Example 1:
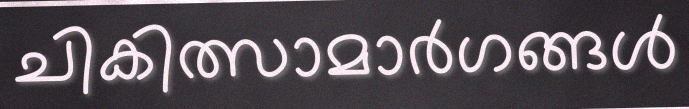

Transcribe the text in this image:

ചികിത്സാമാർഗങ്ങൾ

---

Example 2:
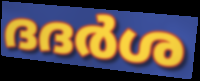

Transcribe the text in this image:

ദദർശ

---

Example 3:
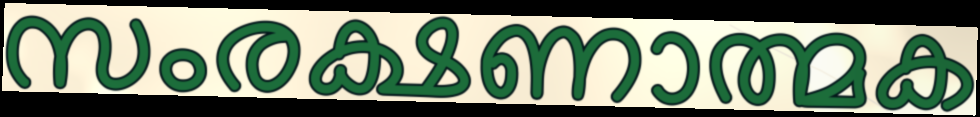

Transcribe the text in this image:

സംരക്ഷണാത്മക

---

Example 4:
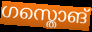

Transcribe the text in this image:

ഗസ്തൊങ്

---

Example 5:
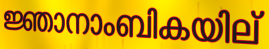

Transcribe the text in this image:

ജ്ഞാനാംബികയില്